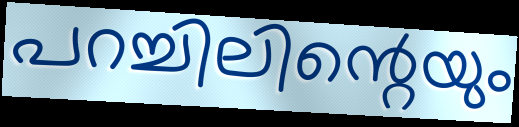
പറച്ചിലിന്റെയും